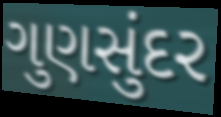
ગુણસુંદર